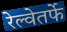
रेल्वेतर्फे